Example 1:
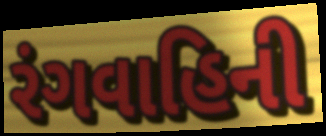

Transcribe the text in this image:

રંગવાહિની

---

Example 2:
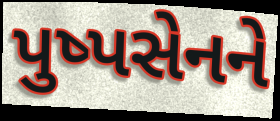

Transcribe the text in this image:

પુષ્પસેનને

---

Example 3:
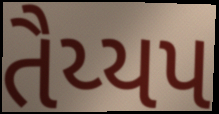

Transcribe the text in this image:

તૈય્યપ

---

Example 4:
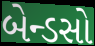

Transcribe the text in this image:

બેન્ડસો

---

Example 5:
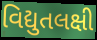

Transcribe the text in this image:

વિદ્યુતલક્ષી